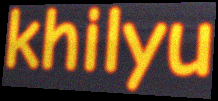
khilyu